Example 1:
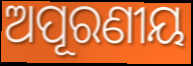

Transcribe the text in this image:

ଅପୂରଣୀୟ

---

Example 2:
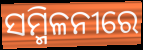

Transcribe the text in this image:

ସମ୍ମିଳନୀରେ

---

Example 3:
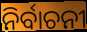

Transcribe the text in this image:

ନିର୍ବାଚନୀ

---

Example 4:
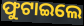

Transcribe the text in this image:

ଫୁଟାଇଲେ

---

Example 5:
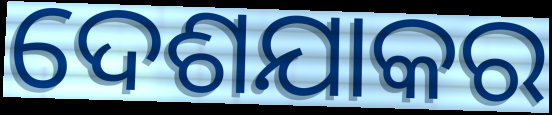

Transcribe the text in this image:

ଦେଶଯାକର